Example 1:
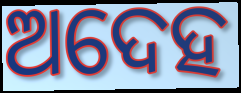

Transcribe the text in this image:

ଅଦେହ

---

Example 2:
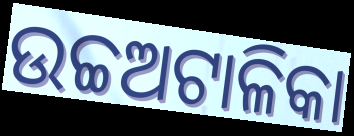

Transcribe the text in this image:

ଉଚ୍ଚଅଟାଳିକା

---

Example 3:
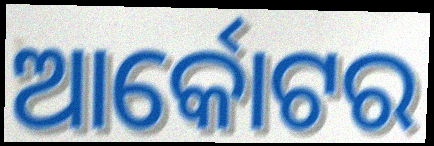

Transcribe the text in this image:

ଆର୍କୋଟର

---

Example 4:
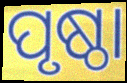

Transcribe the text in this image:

ପୃଷ୍ଠା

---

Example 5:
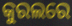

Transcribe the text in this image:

କୁରଲରେ